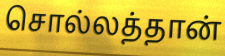
சொல்லத்தான்